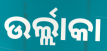
ଉର୍ଲ୍ଲାକା